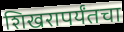
शिखरापर्यंतचा